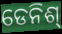
ଡେନିଶ୍